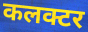
कलक्टर